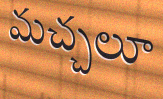
మచ్చలూ